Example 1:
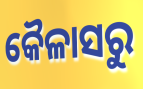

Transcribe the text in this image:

କୈଳାସରୁ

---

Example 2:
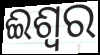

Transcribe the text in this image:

ଈଶ୍ଵର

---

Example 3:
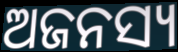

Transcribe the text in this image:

ଅଜନସ୍ୟ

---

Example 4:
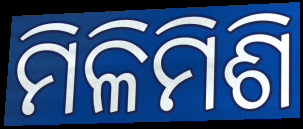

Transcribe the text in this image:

ମିଳିମିଶି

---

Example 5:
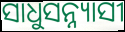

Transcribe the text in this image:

ସାଧୁସନ୍ନ୍ୟାସୀ